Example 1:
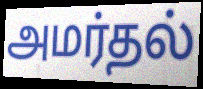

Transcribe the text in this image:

அமர்தல்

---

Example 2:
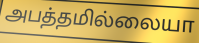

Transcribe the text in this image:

அபத்தமில்லையா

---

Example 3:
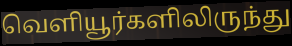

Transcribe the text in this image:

வெளியூர்களிலிருந்து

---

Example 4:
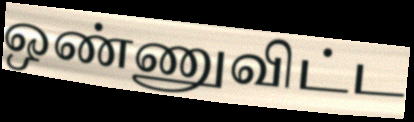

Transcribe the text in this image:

ஒண்ணுவிட்ட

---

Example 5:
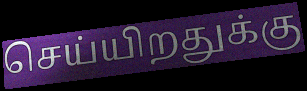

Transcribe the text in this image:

செய்யிறதுக்கு